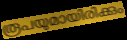
രൂപയുമായിരിക്കും